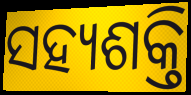
ସହ୍ୟଶକ୍ତି